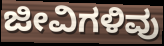
ಜೀವಿಗಳಿವು